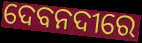
ଦେବନଦୀରେ